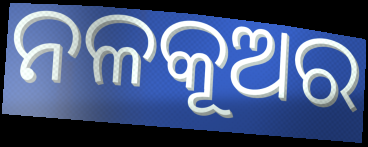
ନଳକୂଅର